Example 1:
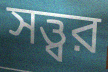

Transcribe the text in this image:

সত্ত্বর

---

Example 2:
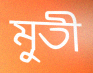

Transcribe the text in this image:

মুতী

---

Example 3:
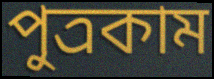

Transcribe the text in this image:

পুত্রকাম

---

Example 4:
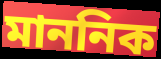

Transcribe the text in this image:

মাননিক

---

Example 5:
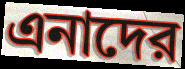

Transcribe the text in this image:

এনাদের